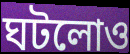
ঘটলোও